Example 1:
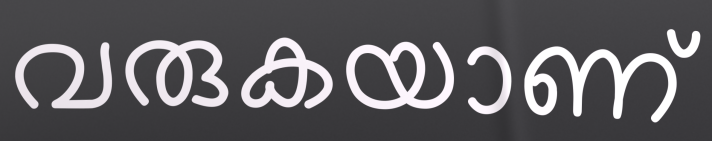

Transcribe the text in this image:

വരുകയാണ്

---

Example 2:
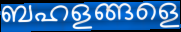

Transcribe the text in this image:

ബഹളങ്ങളെ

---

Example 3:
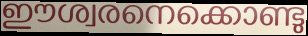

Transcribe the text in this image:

ഈശ്വരനെക്കൊണ്ടു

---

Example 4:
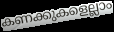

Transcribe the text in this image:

കണക്കുകളെല്ലാം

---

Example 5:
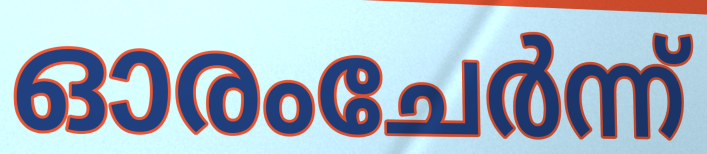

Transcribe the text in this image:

ഓരംചേർന്ന്